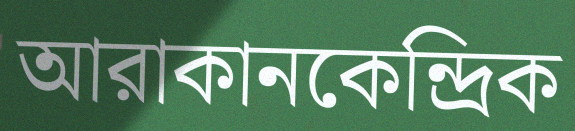
আরাকানকেন্দ্রিক